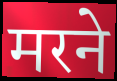
मरने